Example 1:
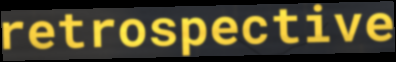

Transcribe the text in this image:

retrospective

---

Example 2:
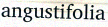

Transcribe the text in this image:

angustifolia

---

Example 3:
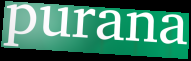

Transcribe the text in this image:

purana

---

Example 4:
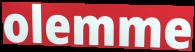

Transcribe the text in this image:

olemme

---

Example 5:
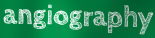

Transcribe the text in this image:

angiography